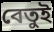
বেতুই